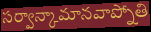
సర్వాన్కామానవాప్నోతి